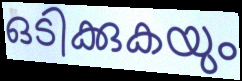
ഒടിക്കുകയും